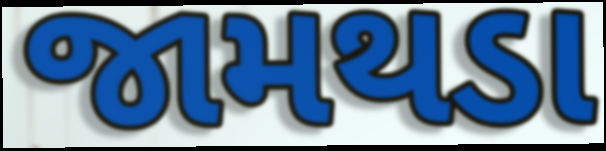
જામથડા